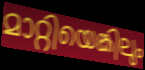
മാറ്റിയെങ്കിലും